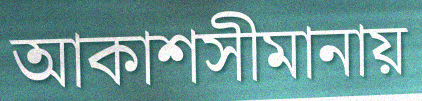
আকাশসীমানায়